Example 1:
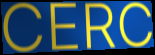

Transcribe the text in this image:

CERC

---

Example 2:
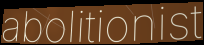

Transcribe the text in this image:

abolitionist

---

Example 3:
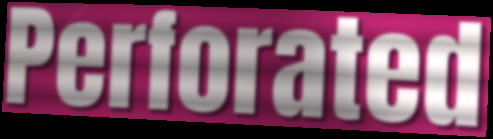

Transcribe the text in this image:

Perforated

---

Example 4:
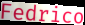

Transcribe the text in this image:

Fedrico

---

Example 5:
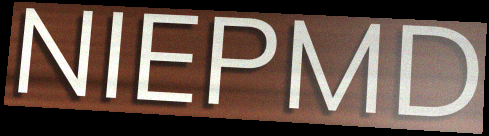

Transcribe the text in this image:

NIEPMD